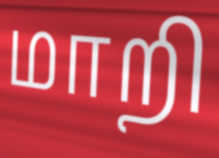
மாறி